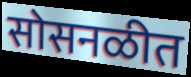
सोसनळीत